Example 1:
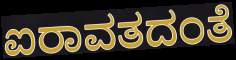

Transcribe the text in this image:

ಐರಾವತದಂತೆ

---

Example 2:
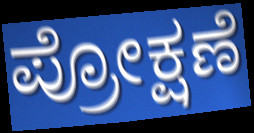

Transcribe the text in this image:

ಪ್ರೋಕ್ಷಣೆ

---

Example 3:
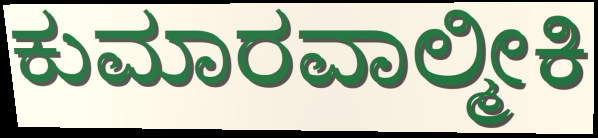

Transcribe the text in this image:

ಕುಮಾರವಾಲ್ಮೀಕಿ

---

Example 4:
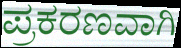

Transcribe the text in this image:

ಪ್ರಕರಣವಾಗಿ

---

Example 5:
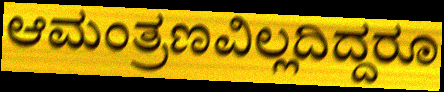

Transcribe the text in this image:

ಆಮಂತ್ರಣವಿಲ್ಲದಿದ್ದರೂ